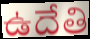
ఉదేతి